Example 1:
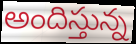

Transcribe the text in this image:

అందిస్తున్న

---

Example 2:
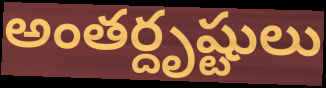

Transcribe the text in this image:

అంతర్దృష్టులు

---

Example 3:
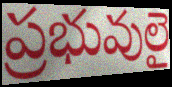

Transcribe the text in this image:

ప్రభువులై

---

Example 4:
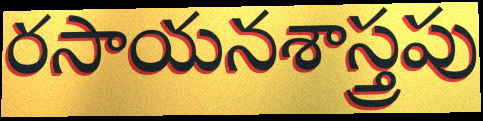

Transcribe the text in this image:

రసాయనశాస్త్రపు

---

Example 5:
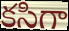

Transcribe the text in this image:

కసిగా